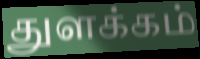
துளக்கம்